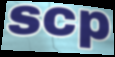
scp